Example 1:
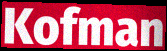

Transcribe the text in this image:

Kofman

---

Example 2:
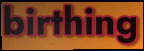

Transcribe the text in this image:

birthing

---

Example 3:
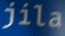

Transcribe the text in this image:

jila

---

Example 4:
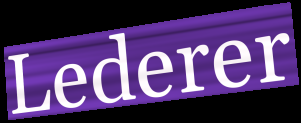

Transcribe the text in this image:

Lederer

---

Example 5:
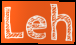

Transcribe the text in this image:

Leh